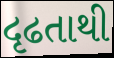
દૃઢતાથી